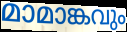
മാമാങ്കവും